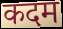
कदम